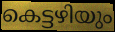
കെട്ടഴിയും